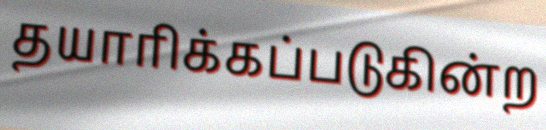
தயாரிக்கப்படுகின்ற